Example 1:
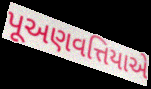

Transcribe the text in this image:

પૂઅણવત્તિયાએ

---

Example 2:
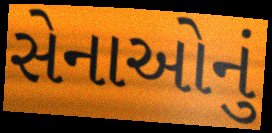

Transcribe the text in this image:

સેનાઓનું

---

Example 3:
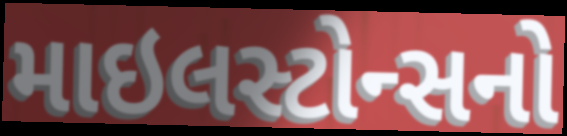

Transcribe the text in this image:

માઇલસ્ટોન્સનો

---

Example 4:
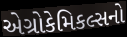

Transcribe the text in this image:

એગ્રોકેમિકલ્સનો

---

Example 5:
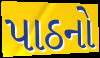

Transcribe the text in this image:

પાઠનો